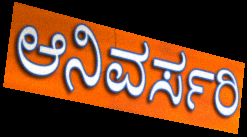
ಆನಿವರ್ಸರಿ